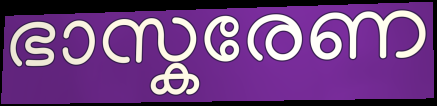
ഭാസ്കരേണ